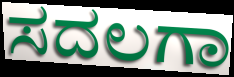
ಸದಲಗಾ